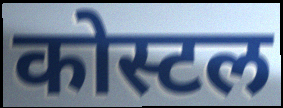
कोस्टल